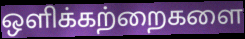
ஒளிக்கற்றைகளை